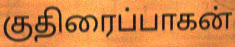
குதிரைப்பாகன்